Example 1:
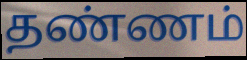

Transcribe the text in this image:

தண்ணம்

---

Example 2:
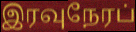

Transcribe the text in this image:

இரவுநேரப்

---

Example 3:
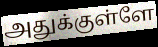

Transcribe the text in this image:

அதுக்குள்ளே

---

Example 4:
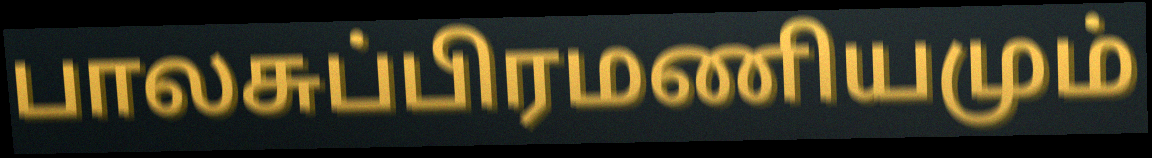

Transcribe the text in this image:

பாலசுப்பிரமணியமும்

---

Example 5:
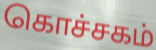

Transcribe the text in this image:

கொச்சகம்